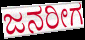
ಜನರೀಗ